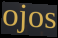
ojos